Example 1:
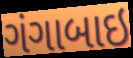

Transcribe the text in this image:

ગંગાબાઇ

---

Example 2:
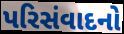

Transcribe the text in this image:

પરિસંવાદનો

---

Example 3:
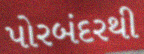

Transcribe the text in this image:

પોરબંદરથી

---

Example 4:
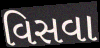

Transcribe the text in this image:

વિસવા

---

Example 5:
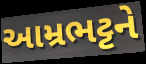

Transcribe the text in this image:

આમ્રભટ્ટને